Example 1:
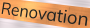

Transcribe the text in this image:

Renovation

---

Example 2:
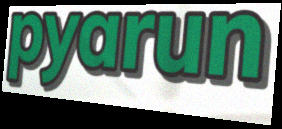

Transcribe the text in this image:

pyarun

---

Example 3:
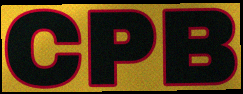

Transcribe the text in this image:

CPB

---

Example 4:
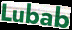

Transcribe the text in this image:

Lubab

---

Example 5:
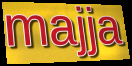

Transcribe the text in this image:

majja